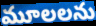
మూలలను